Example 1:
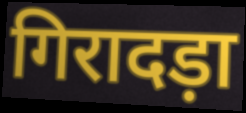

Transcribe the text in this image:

गिरादड़ा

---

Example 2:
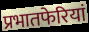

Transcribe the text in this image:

प्रभातफेरियां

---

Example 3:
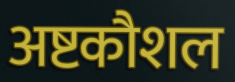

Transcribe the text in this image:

अष्टकौशल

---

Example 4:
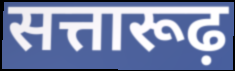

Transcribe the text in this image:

सत्तारूढ़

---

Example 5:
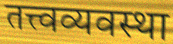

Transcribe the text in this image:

तत्त्वव्यवस्था